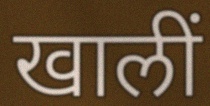
खालीं